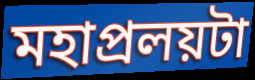
মহাপ্রলয়টা